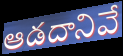
ఆడదానివే